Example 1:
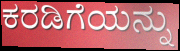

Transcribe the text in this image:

ಕರಡಿಗೆಯನ್ನು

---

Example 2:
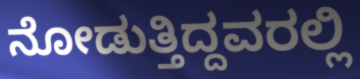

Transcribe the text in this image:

ನೋಡುತ್ತಿದ್ದವರಲ್ಲಿ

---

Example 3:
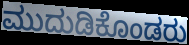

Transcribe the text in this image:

ಮುದುಡಿಕೊಂಡರು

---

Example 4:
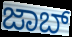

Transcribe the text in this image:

ಜಾಬ್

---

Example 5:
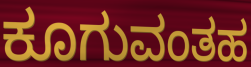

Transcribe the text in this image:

ಕೂಗುವಂತಹ